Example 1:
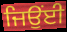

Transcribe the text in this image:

ਜਿਉਂਈ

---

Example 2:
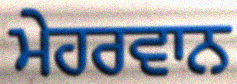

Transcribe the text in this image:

ਮੇਹਰਵਾਨ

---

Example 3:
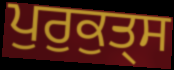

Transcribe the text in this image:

ਪੁਰੁਕੁਤ੍ਸ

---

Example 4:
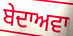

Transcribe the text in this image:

ਬੇਦਾਅਵਾ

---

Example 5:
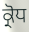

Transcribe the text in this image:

ਕ੍ਰੋਧ